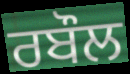
ਰਬੌਲ